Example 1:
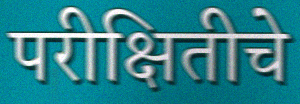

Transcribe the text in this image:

परीक्षितीचे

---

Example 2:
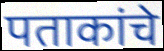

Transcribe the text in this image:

पताकांचे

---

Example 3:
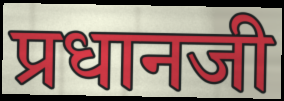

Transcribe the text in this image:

प्रधानजी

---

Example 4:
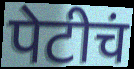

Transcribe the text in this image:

पेटीचं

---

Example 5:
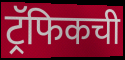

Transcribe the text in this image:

ट्रॅफिकची